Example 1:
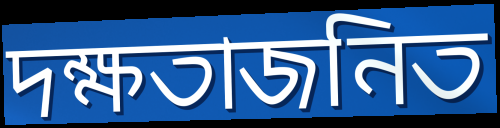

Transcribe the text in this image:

দক্ষতাজনিত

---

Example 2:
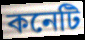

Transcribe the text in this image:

কনেটি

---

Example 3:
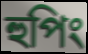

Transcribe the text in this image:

হুপিং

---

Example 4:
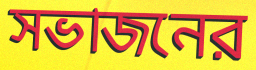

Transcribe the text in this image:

সভাজনের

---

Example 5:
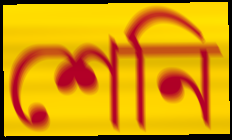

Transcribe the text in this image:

শেনি